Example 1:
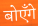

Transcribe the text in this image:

बोएँगे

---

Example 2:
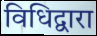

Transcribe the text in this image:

विधिद्वारा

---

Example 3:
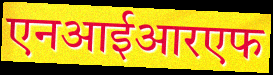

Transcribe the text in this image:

एनआईआरएफ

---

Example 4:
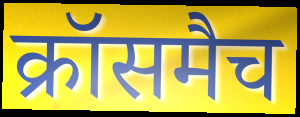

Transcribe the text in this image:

क्रॉसमैच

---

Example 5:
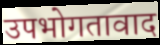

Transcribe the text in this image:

उपभोगतावाद